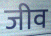
जीव